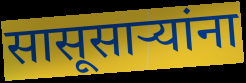
सासूसाऱ्यांना